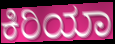
ಕಿರಿಯಾ